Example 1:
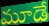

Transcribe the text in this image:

మూడే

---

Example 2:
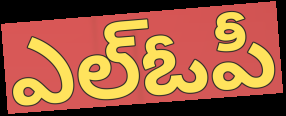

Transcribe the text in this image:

ఎల్ఓపీ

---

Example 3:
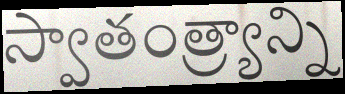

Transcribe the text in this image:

స్వాతంత్ర్యాన్ని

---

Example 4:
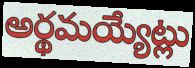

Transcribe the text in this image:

అర్థమయ్యేట్లు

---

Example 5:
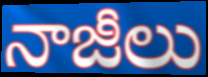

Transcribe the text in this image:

నాజీలు